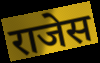
राजेस